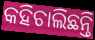
କହିଚାଲିଛନ୍ତି